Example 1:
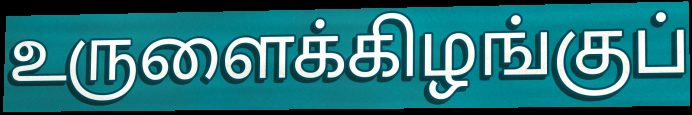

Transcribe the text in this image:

உருளைக்கிழங்குப்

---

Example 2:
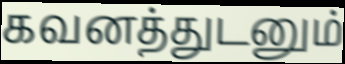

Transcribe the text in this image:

கவனத்துடனும்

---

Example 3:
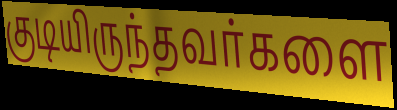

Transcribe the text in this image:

குடியிருந்தவர்களை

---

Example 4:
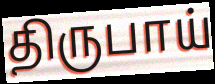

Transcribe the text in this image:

திருபாய்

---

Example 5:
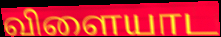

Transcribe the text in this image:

விளையாட